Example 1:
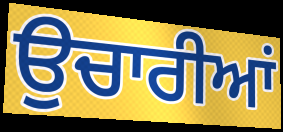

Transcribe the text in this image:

ਉਚਾਰੀਆਂ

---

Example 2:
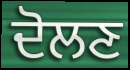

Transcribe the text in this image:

ਦੋਲਣ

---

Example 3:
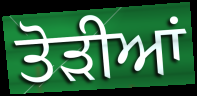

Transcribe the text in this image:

ਤੋਡ਼ੀਆਂ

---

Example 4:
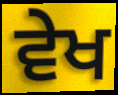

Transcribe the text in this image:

ਵੇਖ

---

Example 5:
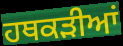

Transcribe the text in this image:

ਹਥਕੜੀਆਂ